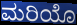
ಮರಿಯೊ